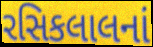
રસિકલાલનાં